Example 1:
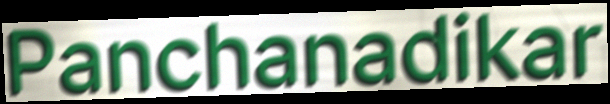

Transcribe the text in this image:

Panchanadikar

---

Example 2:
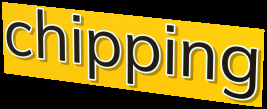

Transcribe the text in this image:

chipping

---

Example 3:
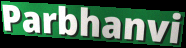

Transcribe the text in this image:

Parbhanvi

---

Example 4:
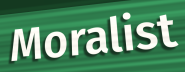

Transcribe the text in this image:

Moralist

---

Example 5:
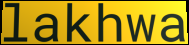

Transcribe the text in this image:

lakhwa